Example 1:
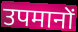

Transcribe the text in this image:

उपमानों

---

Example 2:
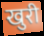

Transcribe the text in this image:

खुरी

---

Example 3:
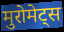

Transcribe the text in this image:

मुरोमेट्स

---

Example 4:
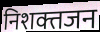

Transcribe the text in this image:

निशक्तजन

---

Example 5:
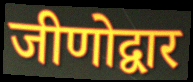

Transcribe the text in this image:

जीणोद्वार